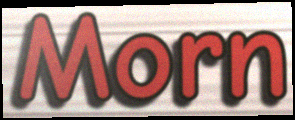
Morn